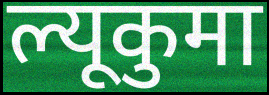
ल्यूकुमा